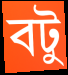
বটু